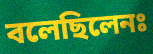
বলেছিলেনঃ